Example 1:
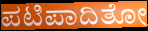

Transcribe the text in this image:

ಪಟಿಪಾದಿತೋ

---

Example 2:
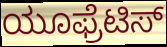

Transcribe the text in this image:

ಯೂಫ್ರೆಟಿಸ್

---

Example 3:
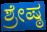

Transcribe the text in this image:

ಶ್ರೇಷ್ಠ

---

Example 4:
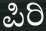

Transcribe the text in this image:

ಪಿರಿ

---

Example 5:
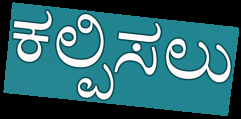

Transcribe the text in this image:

ಕಲ್ಪಿಸಲು